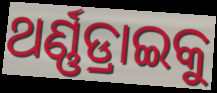
ଥର୍ଣ୍ଣଡ୍ରାଇକୁ